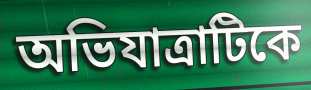
অভিযাত্রাটিকে